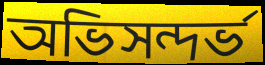
অভিসন্দর্ভ